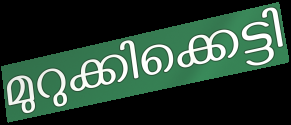
മുറുക്കിക്കെട്ടി